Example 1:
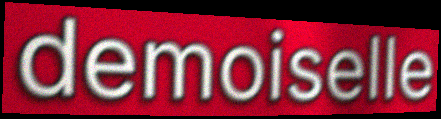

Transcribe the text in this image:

demoiselle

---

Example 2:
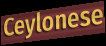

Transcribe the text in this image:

Ceylonese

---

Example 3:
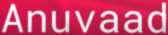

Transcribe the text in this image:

Anuvaad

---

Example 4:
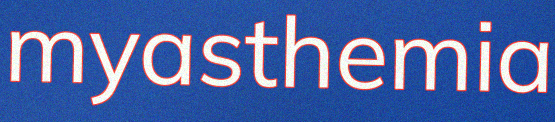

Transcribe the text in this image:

myasthemia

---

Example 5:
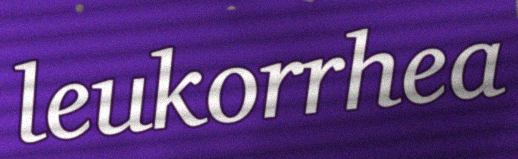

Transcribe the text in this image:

leukorrhea